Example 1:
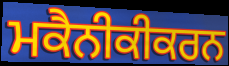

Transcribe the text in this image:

ਮਕੈਨੀਕੀਕਰਨ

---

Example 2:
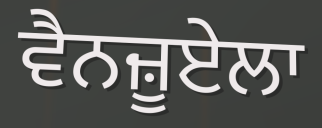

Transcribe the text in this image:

ਵੈਨਜ਼ੂਏਲਾ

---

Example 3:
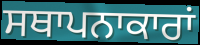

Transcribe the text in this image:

ਸਥਾਪਨਾਕਾਰਾਂ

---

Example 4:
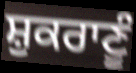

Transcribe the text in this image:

ਸ਼ੁਕਰਾਣੂੰ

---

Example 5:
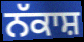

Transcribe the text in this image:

ਨੱਕਾਸ਼